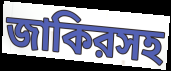
জাকিরসহ